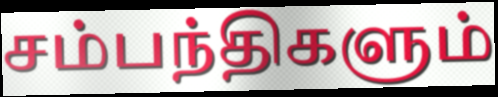
சம்பந்திகளும்